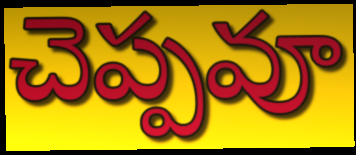
చెప్పవూ